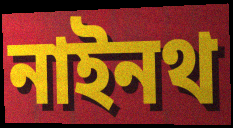
নাইনথ